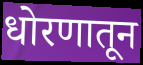
धोरणातून